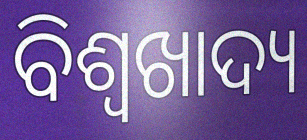
ବିଶ୍ୱଖାଦ୍ୟ